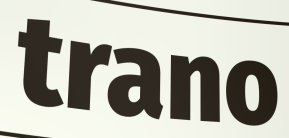
trano